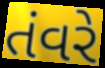
તંવરે